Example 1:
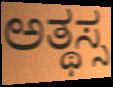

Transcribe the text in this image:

ಅತ್ಥಸ್ಸ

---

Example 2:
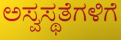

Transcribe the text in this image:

ಅಸ್ವಸ್ಥತೆಗಳಿಗೆ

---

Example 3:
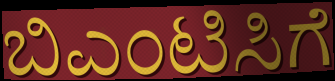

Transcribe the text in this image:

ಬಿಎಂಟಿಸಿಗೆ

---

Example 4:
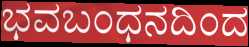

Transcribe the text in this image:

ಭವಬಂಧನದಿಂದ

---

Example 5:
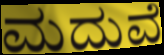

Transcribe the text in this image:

ಮದುವೆ